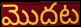
మొదట